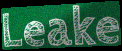
Leake